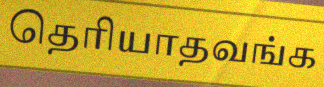
தெரியாதவங்க